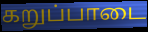
கறுப்பாடை